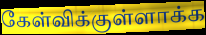
கேள்விக்குள்ளாக்க